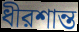
ধীরশান্ত